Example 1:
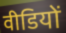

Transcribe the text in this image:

वीडियों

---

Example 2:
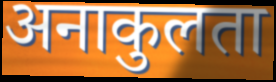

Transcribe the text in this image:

अनाकुलता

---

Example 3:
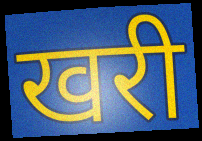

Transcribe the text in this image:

खरी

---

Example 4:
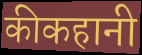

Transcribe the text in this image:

कीकहानी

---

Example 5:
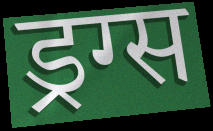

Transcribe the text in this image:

ड्रग्स